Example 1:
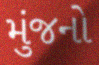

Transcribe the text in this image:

મુંજનો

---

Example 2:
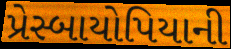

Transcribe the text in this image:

પ્રેસ્બાયોપિયાની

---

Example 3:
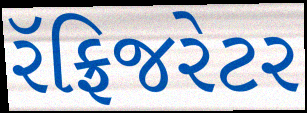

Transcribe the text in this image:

રૅફ્રિજરેટર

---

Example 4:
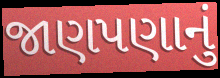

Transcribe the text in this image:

જાણપણાનું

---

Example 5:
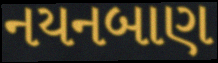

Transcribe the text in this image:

નયનબાણ